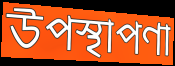
উপস্থাপণা